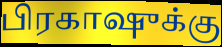
பிரகாஷுக்கு